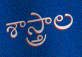
శాస్త్రాల